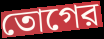
তোগের